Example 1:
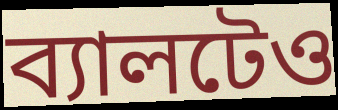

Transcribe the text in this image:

ব্যালটেও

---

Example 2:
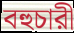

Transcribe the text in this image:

বহুচারী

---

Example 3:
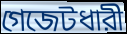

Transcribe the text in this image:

গেজেটধারী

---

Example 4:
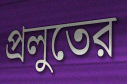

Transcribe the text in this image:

প্রলুতের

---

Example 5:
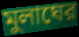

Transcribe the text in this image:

মুলাঘের